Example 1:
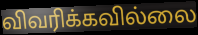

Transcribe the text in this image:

விவரிக்கவில்லை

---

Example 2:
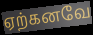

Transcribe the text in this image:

ஏற்கனவே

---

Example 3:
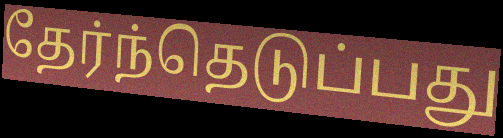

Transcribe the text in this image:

தேர்ந்தெடுப்பது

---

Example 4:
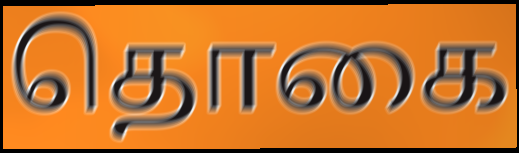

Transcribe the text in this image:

தொகை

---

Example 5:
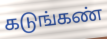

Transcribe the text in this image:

கடுங்கண்